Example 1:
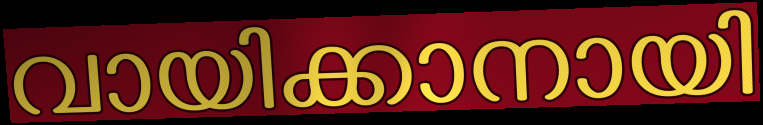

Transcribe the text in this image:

വായിക്കാനായി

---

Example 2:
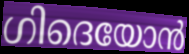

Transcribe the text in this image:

ഗിദെയോൻ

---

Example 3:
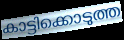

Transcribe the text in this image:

കാട്ടിക്കൊടുത്ത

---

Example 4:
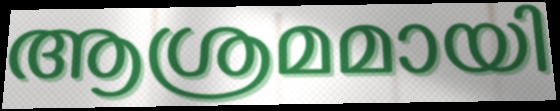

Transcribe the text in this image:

ആശ്രമമായി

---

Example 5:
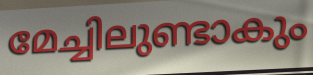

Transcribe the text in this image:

മേച്ചിലുണ്ടാകും